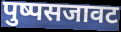
पुष्पसजावट